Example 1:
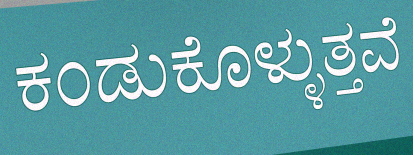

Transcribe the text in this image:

ಕಂಡುಕೊಳ್ಳುತ್ತವೆ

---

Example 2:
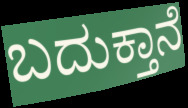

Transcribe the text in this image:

ಬದುಕ್ತಾನೆ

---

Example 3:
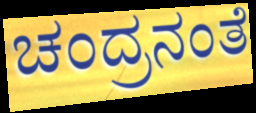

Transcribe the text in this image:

ಚಂದ್ರನಂತೆ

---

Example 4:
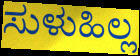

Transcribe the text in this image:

ಸುಳುಹಿಲ್ಲ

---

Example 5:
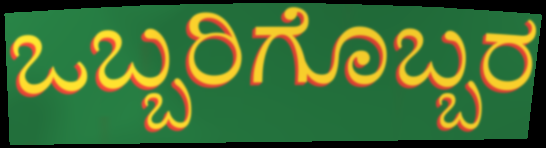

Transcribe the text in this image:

ಒಬ್ಬರಿಗೊಬ್ಬರ